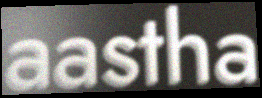
aastha